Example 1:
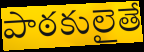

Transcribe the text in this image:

పాఠకులైతే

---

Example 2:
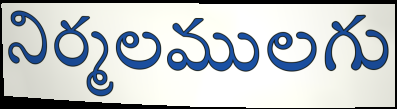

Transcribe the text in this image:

నిర్మలములగు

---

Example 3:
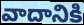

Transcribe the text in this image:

వాదానికి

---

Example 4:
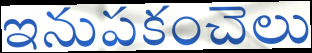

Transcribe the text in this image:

ఇనుపకంచెలు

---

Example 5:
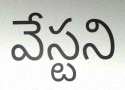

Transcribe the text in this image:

వేస్టని